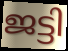
ജട്ടി